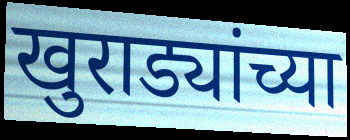
खुराड्यांच्या